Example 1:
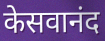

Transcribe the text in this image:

केसवानंद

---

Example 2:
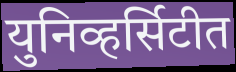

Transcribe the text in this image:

युनिव्हर्सिटीत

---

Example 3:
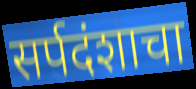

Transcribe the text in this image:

सर्पदंशाचा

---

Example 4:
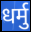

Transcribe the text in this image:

धर्मु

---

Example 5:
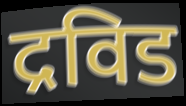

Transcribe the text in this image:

द्रविड